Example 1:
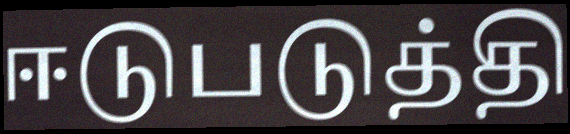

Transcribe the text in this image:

ஈடுபடுத்தி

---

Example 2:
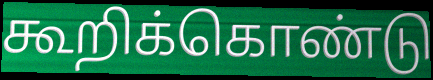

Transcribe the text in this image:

கூறிக்கொண்டு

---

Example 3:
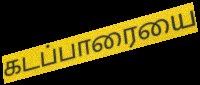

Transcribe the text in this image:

கடப்பாரையை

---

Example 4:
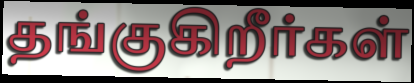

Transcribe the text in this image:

தங்குகிறீர்கள்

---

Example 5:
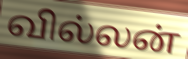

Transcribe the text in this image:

வில்லன்